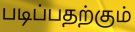
படிப்பதற்கும்